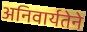
अनिवार्यतेने